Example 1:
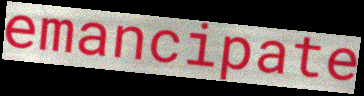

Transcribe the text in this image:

emancipate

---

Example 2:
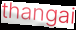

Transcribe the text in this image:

thangai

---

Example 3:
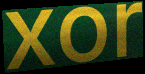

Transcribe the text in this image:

xor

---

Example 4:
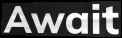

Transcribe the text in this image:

Await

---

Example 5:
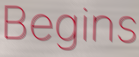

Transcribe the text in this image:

Begins